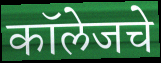
कॉलेजचे